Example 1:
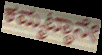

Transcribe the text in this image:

ಕಮ್ಮಟ್ಠಾನೇ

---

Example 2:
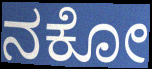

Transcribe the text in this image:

ನಕೋ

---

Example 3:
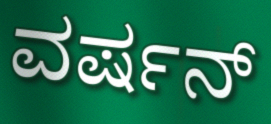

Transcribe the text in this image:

ವರ್ಷನ್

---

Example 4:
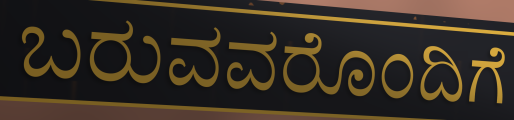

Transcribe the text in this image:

ಬರುವವರೊಂದಿಗೆ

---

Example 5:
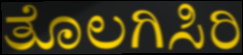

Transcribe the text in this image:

ತೊಲಗಿಸಿರಿ